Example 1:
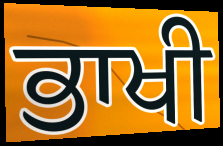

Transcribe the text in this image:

ਭਾਖੀ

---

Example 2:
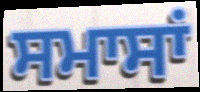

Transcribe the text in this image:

ਸਮਾਸਾਂ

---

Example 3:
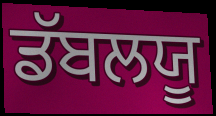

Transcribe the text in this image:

ਡੱਬਲਯੂ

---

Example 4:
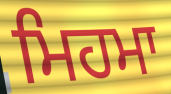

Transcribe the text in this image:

ਮਿਹਮਾ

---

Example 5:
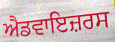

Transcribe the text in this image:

ਐਡਵਾਇਜ਼ਰਸ